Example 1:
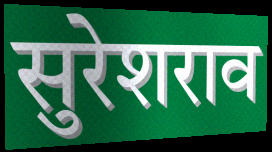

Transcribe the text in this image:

सुरेशराव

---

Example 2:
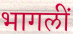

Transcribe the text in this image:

भागलीं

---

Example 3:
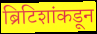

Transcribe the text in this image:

ब्रिटिशांकडून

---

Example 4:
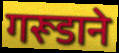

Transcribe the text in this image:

गरूडाने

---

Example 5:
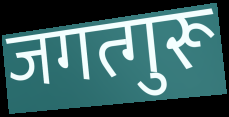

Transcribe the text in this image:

जगत्गुरू